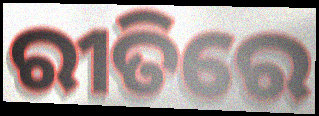
ରୀତିରେ